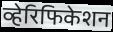
व्हेरिफिकेशन